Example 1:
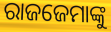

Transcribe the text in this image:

ରାଜଜେମାଙ୍କୁ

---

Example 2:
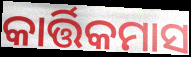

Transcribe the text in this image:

କାର୍ତ୍ତିକମାସ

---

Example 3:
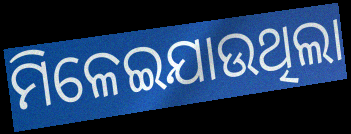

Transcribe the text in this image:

ମିଳେଇଯାଉଥିଲା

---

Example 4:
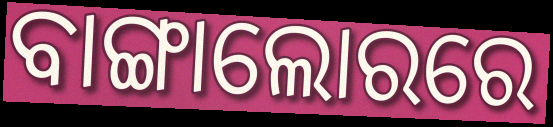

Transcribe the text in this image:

ବାଙ୍ଗାଲୋରରେ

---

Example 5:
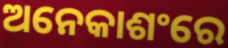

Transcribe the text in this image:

ଅନେକାଶଂରେ